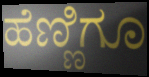
ಹೆಣ್ಣಿಗೂ